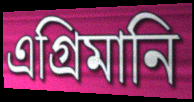
এগ্রিমানি